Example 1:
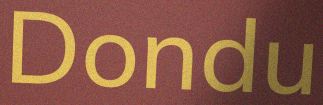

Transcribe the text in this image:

Dondu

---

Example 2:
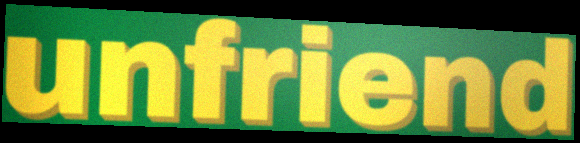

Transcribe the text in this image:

unfriend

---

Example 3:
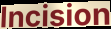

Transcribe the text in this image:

Incision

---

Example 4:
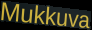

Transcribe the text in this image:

Mukkuva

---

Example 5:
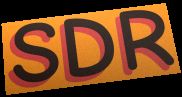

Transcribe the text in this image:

SDR